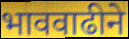
भाववाढीने